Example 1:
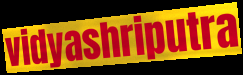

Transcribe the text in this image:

vidyashriputra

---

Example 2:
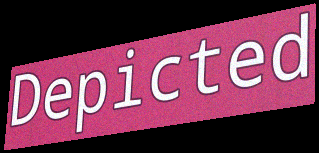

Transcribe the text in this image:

Depicted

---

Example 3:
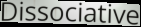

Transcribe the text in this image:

Dissociative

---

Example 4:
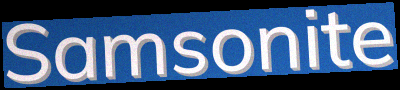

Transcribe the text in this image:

Samsonite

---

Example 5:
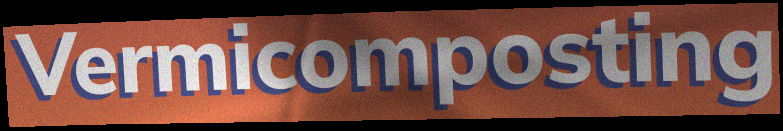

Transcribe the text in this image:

Vermicomposting